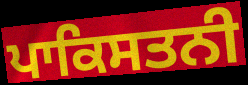
ਪਾਕਿਸਤਨੀ